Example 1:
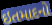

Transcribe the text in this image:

ઇતમાદનો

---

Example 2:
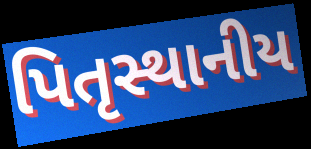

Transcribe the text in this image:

પિતૃસ્થાનીય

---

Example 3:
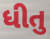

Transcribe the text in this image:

ધીતુ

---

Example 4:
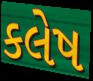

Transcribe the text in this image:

કલેષ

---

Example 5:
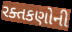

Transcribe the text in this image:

રક્તકણોની